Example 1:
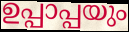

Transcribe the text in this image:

ഉപ്പാപ്പയും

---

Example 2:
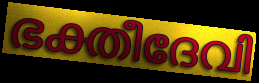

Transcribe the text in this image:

ഭക്തീദേവി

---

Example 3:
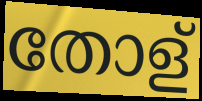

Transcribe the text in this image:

തോള്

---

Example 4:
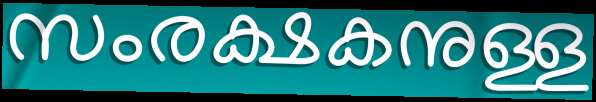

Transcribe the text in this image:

സംരക്ഷകനുള്ള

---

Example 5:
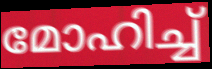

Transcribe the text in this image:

മോഹിച്ച്